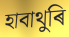
হাবাথুৰি